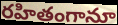
రహితంగానూ